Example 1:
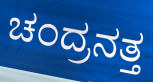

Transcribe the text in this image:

ಚಂದ್ರನತ್ತ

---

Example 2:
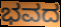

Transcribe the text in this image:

ಭವದ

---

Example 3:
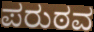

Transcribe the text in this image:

ಪರುಠವ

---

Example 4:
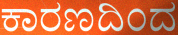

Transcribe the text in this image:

ಕಾರಣದಿಂದ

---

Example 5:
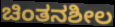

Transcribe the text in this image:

ಚಿಂತನಶೀಲ